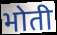
भोती